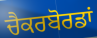
ਚੈਕਰਬੋਰਡਾਂ